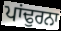
ਪਾਂਢੁਰਨਾ